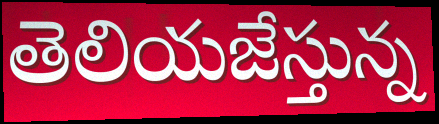
తెలియజేస్తున్న